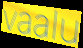
vaalu